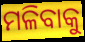
ମଳିବାକୁ